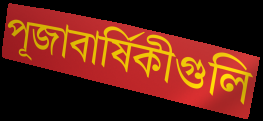
পূজাবার্ষিকীগুলি